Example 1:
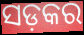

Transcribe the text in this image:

ସଡ଼କର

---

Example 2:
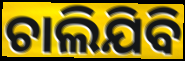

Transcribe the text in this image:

ଚାଲିଯିବି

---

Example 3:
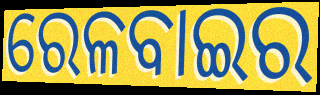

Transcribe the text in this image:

ରେଳବାଇର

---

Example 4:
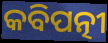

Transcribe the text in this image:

କବିପତ୍ନୀ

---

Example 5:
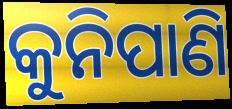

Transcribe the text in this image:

କୁନିପାଣି